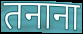
तनाना